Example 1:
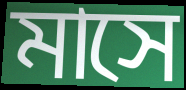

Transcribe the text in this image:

মাসে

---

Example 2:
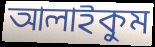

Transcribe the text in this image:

আলাইকুম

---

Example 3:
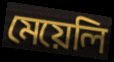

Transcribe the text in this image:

মেয়েলি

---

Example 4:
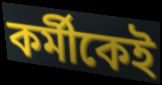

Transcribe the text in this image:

কর্মীকেই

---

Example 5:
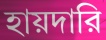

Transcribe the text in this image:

হায়দারি